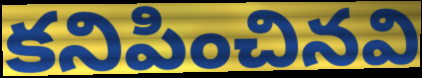
కనిపించినవి